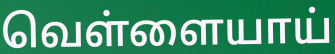
வெள்ளையாய்